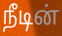
நீடின்